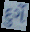
દુર્ગે